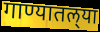
गाण्यातल्या